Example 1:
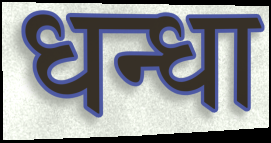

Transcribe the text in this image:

धन्धा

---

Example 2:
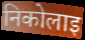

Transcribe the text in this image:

निकोलाइ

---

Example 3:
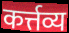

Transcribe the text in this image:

कर्त्तव्य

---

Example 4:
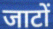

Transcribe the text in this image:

जाटों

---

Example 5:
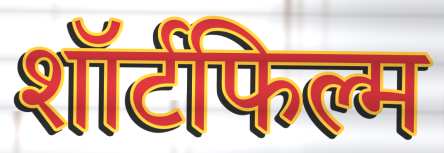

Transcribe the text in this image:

शॉर्टफिल्म